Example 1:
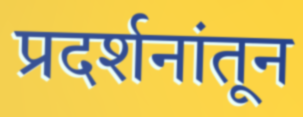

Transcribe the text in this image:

प्रदर्शनांतून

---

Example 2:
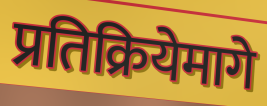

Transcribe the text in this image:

प्रतिक्रियेमागे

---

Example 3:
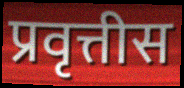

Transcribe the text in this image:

प्रवृत्तीस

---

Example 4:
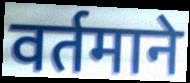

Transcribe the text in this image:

वर्तमाने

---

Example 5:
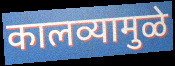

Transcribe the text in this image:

कालव्यामुळे